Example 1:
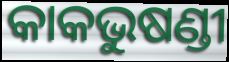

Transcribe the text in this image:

କାକଭୁଷଣ୍ଡୀ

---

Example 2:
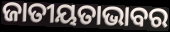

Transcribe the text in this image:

ଜାତୀୟତାଭାବର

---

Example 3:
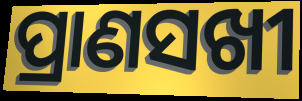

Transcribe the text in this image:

ପ୍ରାଣସଖୀ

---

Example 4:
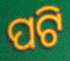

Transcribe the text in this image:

ପଟି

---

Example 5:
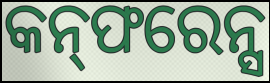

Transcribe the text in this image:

କନ୍‌ଫରେନ୍ସ